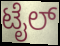
ಟೈಲ್